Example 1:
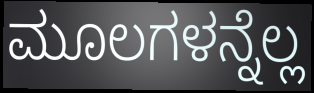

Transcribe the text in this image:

ಮೂಲಗಳನ್ನೆಲ್ಲ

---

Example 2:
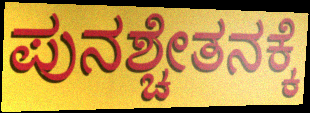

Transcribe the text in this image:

ಪುನಶ್ಚೇತನಕ್ಕೆ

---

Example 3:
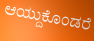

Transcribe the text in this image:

ಆಯ್ದುಕೊಂಡರೆ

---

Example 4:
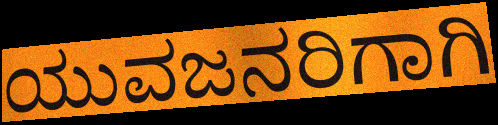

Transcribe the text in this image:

ಯುವಜನರಿಗಾಗಿ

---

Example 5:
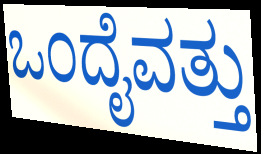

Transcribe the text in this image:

ಒಂದೈವತ್ತು